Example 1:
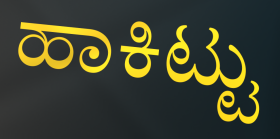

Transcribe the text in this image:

ಹಾಕಿಟ್ಟು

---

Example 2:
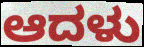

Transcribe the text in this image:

ಆದಳು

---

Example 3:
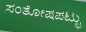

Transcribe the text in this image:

ಸಂತೋಷಪಟ್ಟು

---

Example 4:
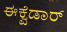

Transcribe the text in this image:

ಈಕ್ವೆಡಾರ್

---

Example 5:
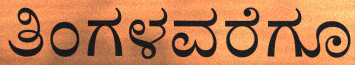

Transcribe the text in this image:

ತಿಂಗಳವರೆಗೂ